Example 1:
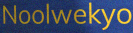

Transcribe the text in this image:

Noolwekyo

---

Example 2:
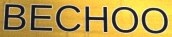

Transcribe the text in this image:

BECHOO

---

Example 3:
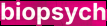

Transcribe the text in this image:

biopsych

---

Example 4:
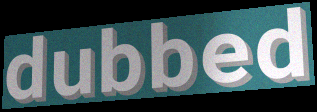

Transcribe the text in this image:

dubbed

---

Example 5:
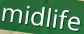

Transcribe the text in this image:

midlife